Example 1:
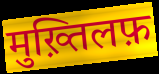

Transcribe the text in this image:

मुख़्तिलफ़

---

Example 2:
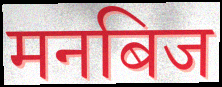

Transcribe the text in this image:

मनबिज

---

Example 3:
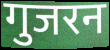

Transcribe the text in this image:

गुजरन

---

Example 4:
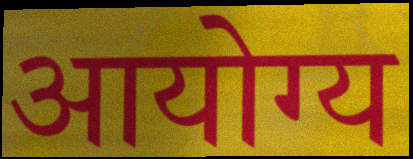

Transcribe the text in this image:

आयोग्य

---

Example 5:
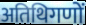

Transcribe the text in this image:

अतिथिगणों